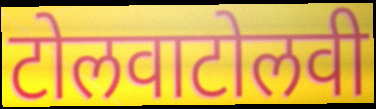
टोलवाटोलवी